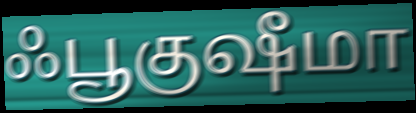
ஃபூகுஷீமா